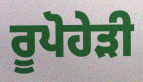
ਰੂਪੋਹੇੜੀ